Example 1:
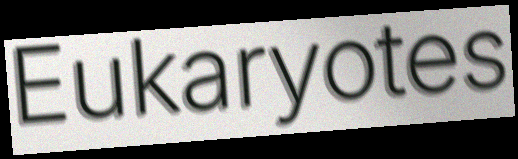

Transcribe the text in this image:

Eukaryotes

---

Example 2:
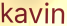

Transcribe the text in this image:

kavin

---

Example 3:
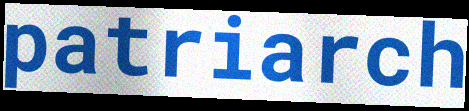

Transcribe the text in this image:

patriarch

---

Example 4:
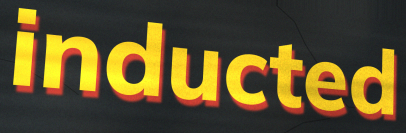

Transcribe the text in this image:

inducted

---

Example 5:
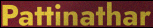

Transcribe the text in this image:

Pattinathar